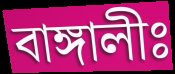
বাঙ্গালীঃ